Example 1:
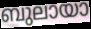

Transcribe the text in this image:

ബുലായാ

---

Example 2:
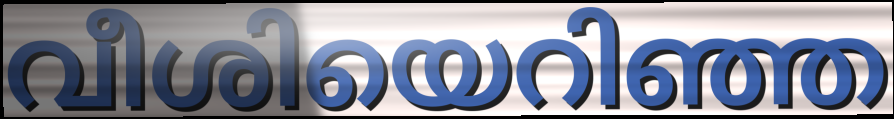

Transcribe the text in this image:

വീശിയെറിഞ്ഞ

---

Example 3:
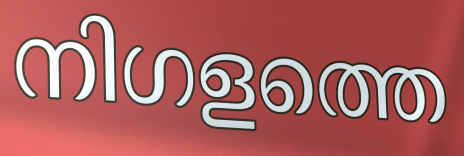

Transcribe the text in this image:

നിഗളത്തെ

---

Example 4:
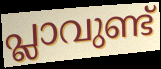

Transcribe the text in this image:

പ്ലാവുണ്ട്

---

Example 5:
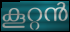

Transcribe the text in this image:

കൂറ്റൻ